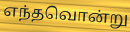
எந்தவொன்று